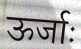
ऊर्जाः